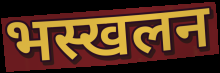
भस्खलन